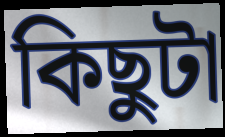
কিছুটা